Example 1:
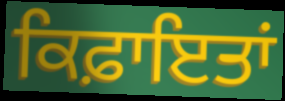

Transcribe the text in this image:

ਕਿਫ਼ਾਇਤਾਂ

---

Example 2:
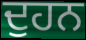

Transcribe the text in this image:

ਦੁਹਨ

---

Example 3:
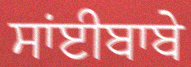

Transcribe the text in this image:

ਸਾਂਈਬਾਬੇ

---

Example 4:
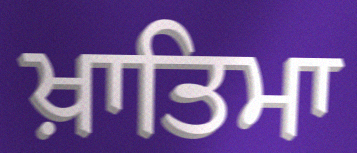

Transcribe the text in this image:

ਖ਼ਾਤਿਮਾ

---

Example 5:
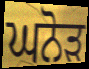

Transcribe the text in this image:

ਘਨੋੜ